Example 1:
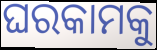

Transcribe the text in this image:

ଘରକାମକୁ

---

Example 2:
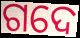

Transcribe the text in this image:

ଗଦେ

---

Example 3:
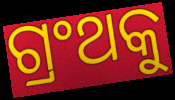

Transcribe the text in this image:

ଗ୍ରଂଥକୁ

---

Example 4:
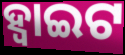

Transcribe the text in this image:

ହ୍ୱାଇଟ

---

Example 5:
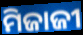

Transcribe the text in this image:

ମିଜାଜୀ